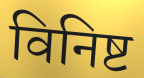
विनिष्ट